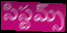
సిస్టమ్స్